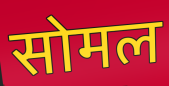
सोमल